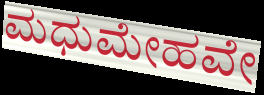
ಮಧುಮೇಹವೇ